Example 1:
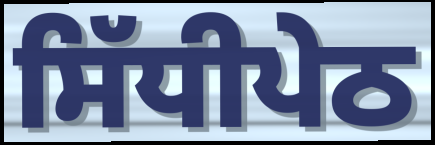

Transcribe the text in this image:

ਸਿੱਧੀਪੇਠ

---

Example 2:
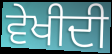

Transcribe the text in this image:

ਵੇਖੀਦੀ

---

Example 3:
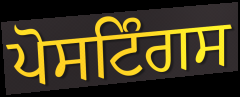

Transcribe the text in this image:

ਪੋਸਟਿੰਗਸ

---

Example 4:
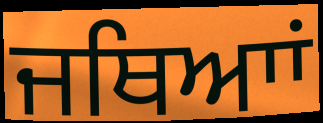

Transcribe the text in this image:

ਜਥਿਆਾਂ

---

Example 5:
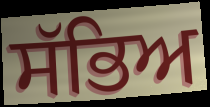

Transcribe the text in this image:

ਸੱਭਿਅ